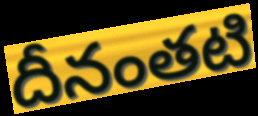
దీనంతటి